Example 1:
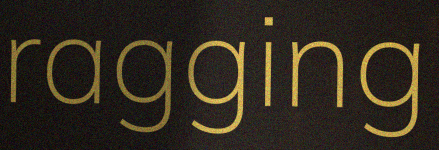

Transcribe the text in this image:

ragging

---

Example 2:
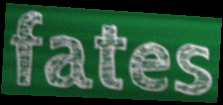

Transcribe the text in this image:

fates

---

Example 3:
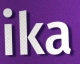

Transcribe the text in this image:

ika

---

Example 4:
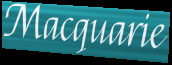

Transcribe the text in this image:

Macquarie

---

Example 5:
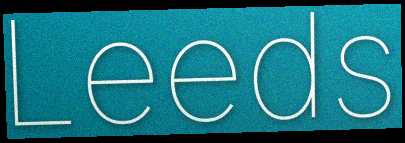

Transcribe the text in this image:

Leeds